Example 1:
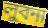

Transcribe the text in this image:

লুবনা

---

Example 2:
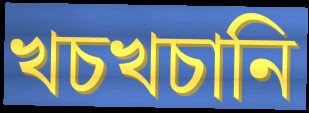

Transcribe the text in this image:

খচখচানি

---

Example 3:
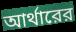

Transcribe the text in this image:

আর্থারের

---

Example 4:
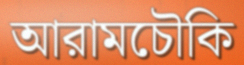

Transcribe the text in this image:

আরামচৌকি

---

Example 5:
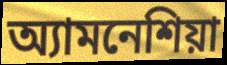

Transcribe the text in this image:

অ্যামনেশিয়া